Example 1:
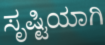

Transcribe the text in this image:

ಸೃಷ್ಟಿಯಾಗಿ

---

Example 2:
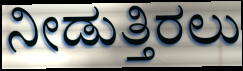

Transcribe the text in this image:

ನೀಡುತ್ತಿರಲು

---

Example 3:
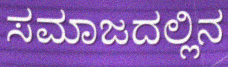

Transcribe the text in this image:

ಸಮಾಜದಲ್ಲಿನ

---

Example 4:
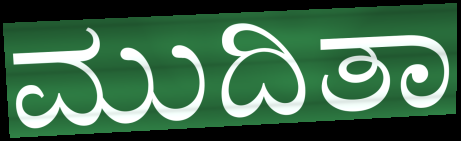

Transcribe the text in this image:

ಮುದಿತಾ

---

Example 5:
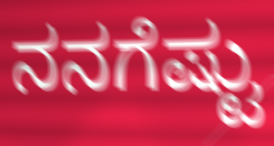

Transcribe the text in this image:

ನನಗೆಷ್ಟು